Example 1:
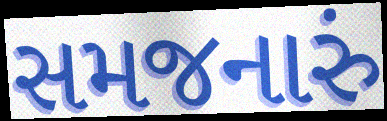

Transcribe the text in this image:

સમજનારું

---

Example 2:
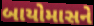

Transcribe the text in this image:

બાયોમાસને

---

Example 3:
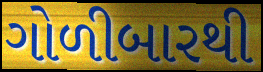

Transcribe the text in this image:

ગોળીબારથી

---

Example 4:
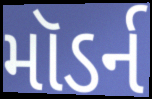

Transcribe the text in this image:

મૉડર્ન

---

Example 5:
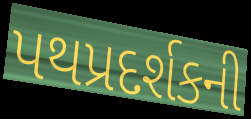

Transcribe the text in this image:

પથપ્રદર્શકની